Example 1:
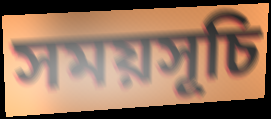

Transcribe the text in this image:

সময়সূচি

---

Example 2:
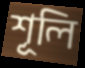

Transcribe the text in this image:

শূলি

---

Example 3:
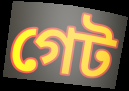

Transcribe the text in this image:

গেট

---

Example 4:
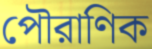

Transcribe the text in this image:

পৌরাণিক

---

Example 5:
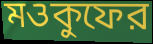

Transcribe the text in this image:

মওকুফের